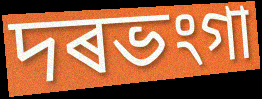
দৰভংগা